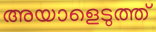
അയാളെടുത്ത്